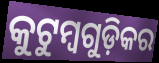
କୁଟୁମ୍ବଗୁଡ଼ିକର